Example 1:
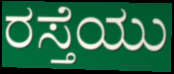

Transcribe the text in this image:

ರಸ್ತೆಯು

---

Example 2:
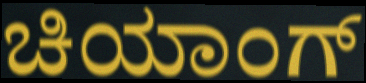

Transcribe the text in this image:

ಚಿಯಾಂಗ್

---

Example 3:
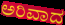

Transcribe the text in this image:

ಅರಿವಾದ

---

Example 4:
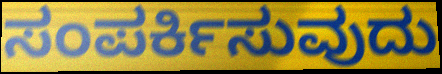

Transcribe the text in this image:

ಸಂಪರ್ಕಿಸುವುದು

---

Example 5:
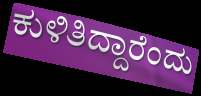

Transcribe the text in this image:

ಕುಳಿತಿದ್ದಾರೆಂದು